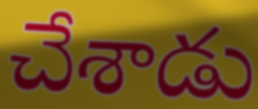
చేశాడు